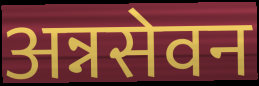
अन्नसेवन